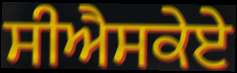
ਸੀਐਸਕੇਏ